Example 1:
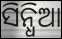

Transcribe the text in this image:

ସିନ୍ଧିଆ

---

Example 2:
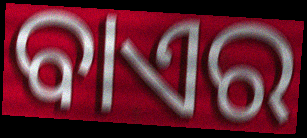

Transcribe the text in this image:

ବାଏର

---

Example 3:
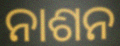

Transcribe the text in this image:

ନାଶନ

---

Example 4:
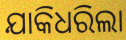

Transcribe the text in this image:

ଯାକିଧରିଲା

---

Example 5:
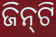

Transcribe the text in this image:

ଜିନ୍‌ଟି